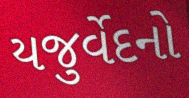
યજુર્વેદનો